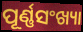
ପୂର୍ଣ୍ଣସଂଖ୍ୟା